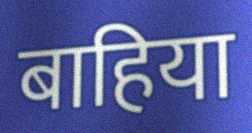
बाहिया